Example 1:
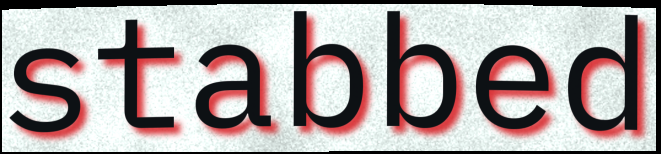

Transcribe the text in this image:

stabbed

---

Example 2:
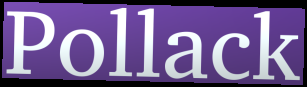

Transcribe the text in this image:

Pollack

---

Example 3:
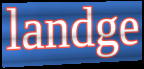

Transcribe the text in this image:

landge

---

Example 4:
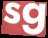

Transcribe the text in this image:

sg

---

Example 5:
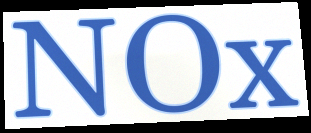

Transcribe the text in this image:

NOx